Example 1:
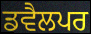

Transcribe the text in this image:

ਡਵੈਲਪਰ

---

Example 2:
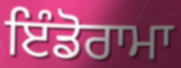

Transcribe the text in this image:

ਇੰਡੋਰਾਮਾ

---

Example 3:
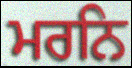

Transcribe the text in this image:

ਮਰਨਿ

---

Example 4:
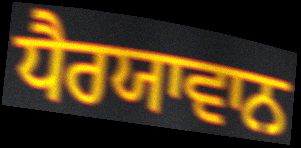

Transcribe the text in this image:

ਧੈਰਯਾਵਾਨ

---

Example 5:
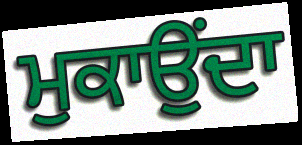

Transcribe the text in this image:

ਮੁਕਾਉਂਦਾ